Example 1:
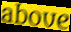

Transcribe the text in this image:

aboue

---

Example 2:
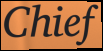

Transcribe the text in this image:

Chief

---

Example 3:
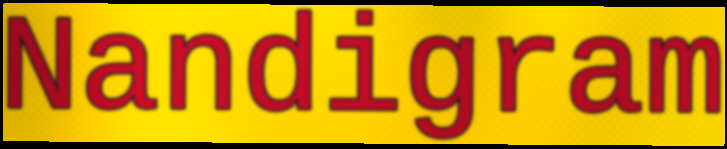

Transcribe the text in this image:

Nandigram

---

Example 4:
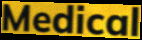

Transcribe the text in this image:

Medical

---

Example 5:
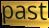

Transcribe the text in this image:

past